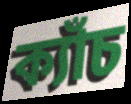
ক্যাঁচ